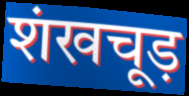
शंखचूड़